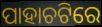
ପାହାଚଟିରେ